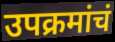
उपक्रमांचं